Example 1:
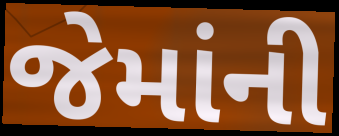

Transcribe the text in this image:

જેમાંની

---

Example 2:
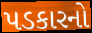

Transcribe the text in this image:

પડકારનો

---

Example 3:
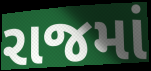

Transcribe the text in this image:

રાજમાં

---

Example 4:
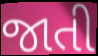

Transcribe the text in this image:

જાતી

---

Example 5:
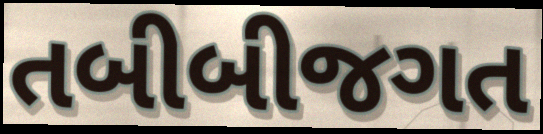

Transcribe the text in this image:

તબીબીજગત